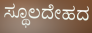
ಸ್ಥೂಲದೇಹದ